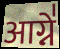
आग्ने॑